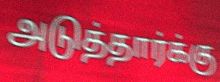
அடுத்தார்க்கு